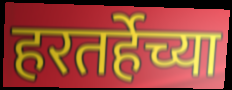
हरतर्हेच्या